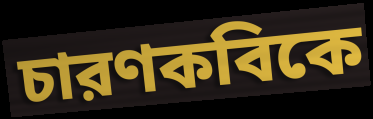
চারণকবিকে